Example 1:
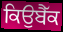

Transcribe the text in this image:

ਕਿਉਬੈੱਕ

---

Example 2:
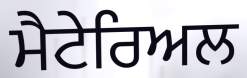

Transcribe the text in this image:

ਮੈਟੇਰਿਅਲ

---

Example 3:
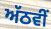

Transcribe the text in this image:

ਅੱਠਵੀੰ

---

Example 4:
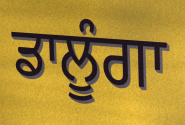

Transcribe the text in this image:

ਡਾਲੂੰਗਾ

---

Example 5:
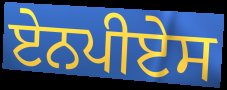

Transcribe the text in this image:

ਏਨਪੀਏਸ